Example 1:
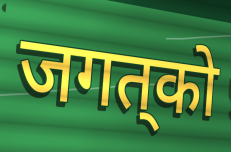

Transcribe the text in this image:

जगत्‌को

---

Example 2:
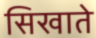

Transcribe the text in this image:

सिखाते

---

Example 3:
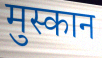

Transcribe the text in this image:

मुस्कान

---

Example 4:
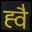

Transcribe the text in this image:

ह्वै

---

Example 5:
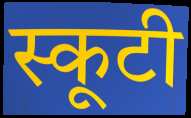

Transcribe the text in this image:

स्कूटी